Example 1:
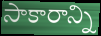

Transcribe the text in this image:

సాకారాన్ని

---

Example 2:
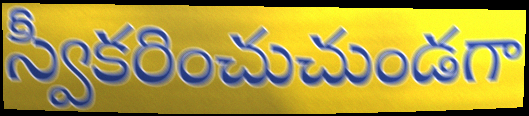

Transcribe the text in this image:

స్వీకరించుచుండగా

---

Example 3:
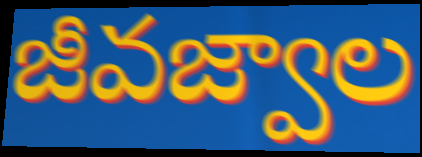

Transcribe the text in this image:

జీవజ్వాల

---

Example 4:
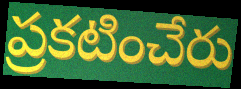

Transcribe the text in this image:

ప్రకటించేరు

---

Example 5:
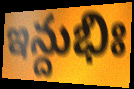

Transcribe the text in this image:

ఇన్దుభిః